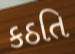
કઠતિ